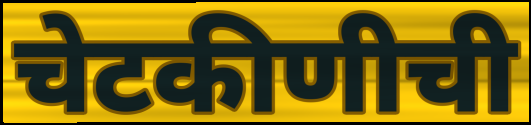
चेटकीणीची